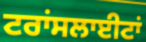
ਟਰਾਂਸਲਾਈਟਾਂ